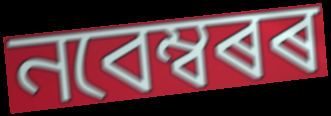
নবেম্বৰৰ